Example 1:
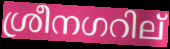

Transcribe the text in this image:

ശ്രീനഗറില്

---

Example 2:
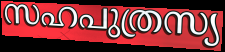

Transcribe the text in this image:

സഹപുത്രസ്യ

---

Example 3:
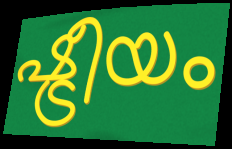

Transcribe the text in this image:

ഷ്ട്രീയം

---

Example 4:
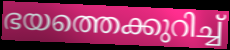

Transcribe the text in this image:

ഭയത്തെക്കുറിച്ച്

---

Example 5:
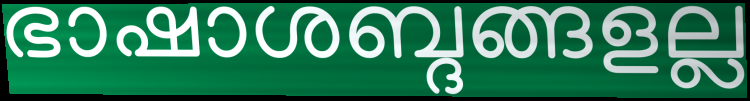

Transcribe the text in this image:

ഭാഷാശബ്ദങ്ങളല്ല